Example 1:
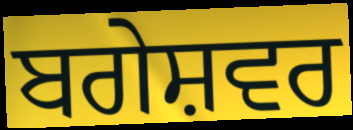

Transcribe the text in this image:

ਬਗੇਸ਼ਵਰ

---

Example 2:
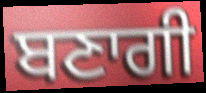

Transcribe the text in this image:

ਬਣਾਗੀ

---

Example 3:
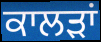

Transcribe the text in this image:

ਕਾਲੜਾਂ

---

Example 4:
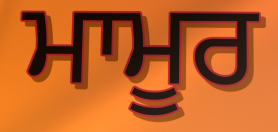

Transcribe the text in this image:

ਮਾਮੂਰ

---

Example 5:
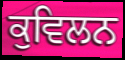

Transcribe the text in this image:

ਕੁਵਿਲਨ